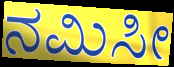
ನಮಿಸೀ